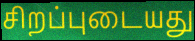
சிறப்புடையது